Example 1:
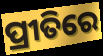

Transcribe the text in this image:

ପ୍ରୀତିରେ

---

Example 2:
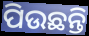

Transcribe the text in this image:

ପିଉଛନ୍ତି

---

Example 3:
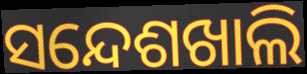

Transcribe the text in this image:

ସନ୍ଦେଶଖାଲି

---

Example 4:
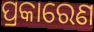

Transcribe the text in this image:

ପ୍ରକାରେଣ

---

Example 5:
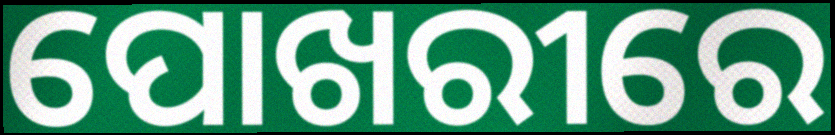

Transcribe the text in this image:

ପୋଖରୀରେ